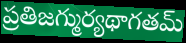
ప్రతిజగ్ముర్యథాగతమ్